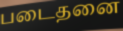
படைதனை